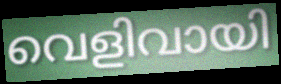
വെളിവായി